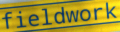
fieldwork